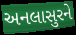
અનલાસુરને